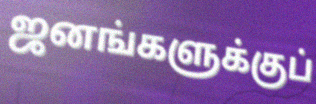
ஜனங்களுக்குப்